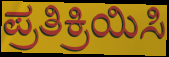
ಪ್ರತಿಕ್ರಿಯಿಸಿ